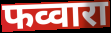
फव्वारा